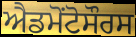
ਐਡਮੋਂਟੋਸੌਰਸ